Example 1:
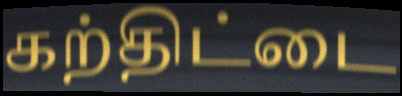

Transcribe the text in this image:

கற்திட்டை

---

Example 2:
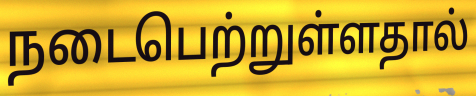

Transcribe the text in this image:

நடைபெற்றுள்ளதால்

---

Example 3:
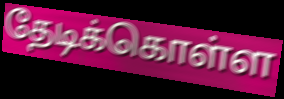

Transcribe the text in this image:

தேடிக்கொள்ள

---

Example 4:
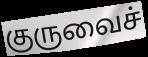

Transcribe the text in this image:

குருவைச்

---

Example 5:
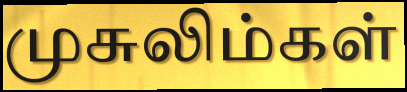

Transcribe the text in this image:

முசுலிம்கள்